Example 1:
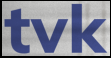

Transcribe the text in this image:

tvk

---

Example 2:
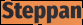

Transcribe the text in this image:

Steppan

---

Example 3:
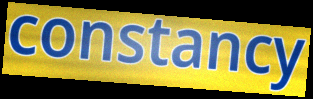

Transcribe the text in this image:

constancy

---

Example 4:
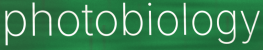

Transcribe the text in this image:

photobiology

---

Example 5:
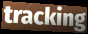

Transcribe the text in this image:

tracking